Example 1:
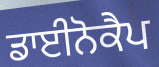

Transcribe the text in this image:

ਡਾਈਨੋਕੈਪ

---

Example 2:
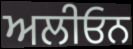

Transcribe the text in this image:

ਅਲੀਓਨ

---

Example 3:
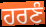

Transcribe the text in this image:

ਹਰਣੰ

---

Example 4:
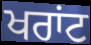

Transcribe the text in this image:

ਖਰਾਂਟ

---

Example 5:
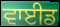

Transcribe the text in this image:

ਵਾਈਡ